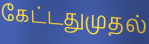
கேட்டதுமுதல்